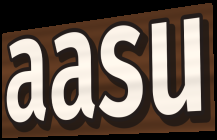
aasu